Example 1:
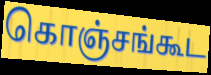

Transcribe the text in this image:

கொஞ்சங்கூட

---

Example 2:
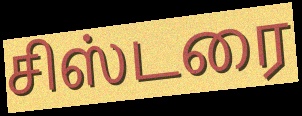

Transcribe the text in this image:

சிஸ்டரை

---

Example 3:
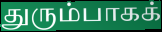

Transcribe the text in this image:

துரும்பாகக்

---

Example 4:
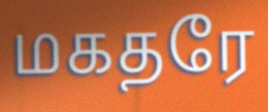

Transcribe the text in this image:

மகதரே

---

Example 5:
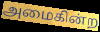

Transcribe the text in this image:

அமைகின்ற